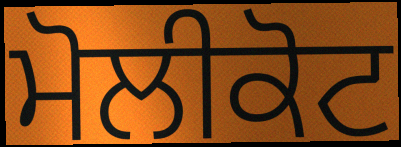
ਮੋਲੀਕੋਟ